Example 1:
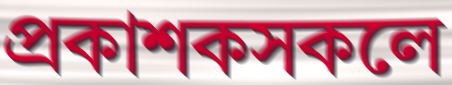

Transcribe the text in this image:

প্ৰকাশকসকলে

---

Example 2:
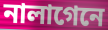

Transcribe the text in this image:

নালাগেনে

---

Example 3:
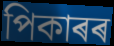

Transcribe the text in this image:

পিকাৰৰ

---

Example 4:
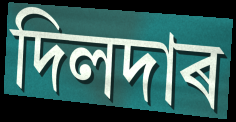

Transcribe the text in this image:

দিলদাৰ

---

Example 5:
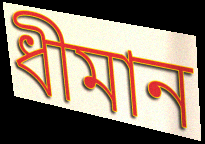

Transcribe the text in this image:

ধীমান